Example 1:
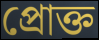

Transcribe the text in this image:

প্রোক্ত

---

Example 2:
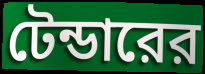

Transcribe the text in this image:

টেন্ডারের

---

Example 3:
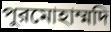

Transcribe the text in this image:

পুরমোহাম্মদি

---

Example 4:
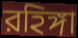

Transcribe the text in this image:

রহিঙ্গা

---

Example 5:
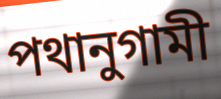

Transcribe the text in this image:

পথানুগামী